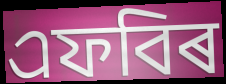
এফবিৰ